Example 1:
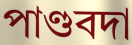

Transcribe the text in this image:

পাণ্ডবদা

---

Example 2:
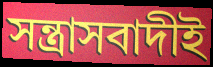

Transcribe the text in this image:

সন্ত্রাসবাদীই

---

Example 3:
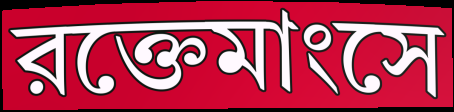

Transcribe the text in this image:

রক্তেমাংসে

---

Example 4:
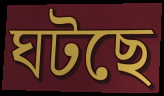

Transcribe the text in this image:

ঘটছে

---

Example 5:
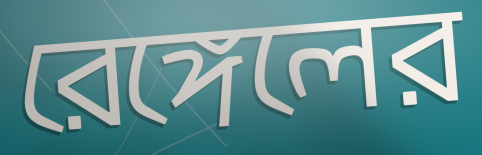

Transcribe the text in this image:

রেঙ্গেলের